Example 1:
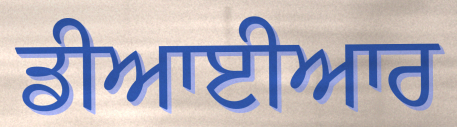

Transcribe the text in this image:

ਡੀਆਈਆਰ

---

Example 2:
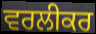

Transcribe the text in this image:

ਵਰਲੀਕਰ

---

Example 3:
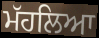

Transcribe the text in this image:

ਮੱਹਲਿਆ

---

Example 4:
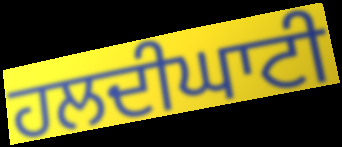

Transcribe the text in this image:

ਹਲਦੀਘਾਟੀ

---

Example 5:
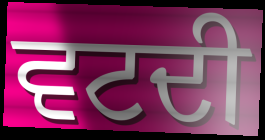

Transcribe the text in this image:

ਵਟਦੀ